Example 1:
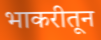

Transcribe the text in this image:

भाकरीतून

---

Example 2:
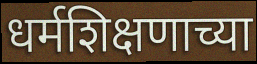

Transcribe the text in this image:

धर्मशिक्षणाच्या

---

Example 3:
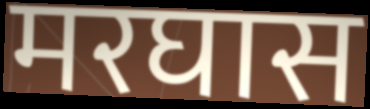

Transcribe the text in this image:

मरघास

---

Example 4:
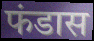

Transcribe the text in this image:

फंडास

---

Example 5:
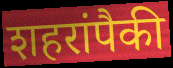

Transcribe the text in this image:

शहरांपैकी